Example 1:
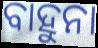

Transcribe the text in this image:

ବାହୁନା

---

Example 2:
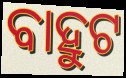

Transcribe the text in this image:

ବାହୁଟ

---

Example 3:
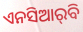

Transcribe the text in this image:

ଏନସିଆର୍‌ବି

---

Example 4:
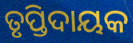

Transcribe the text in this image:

ତୃପ୍ତିଦାୟକ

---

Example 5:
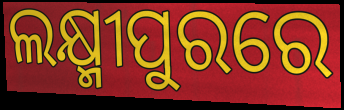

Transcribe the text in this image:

ଲକ୍ଷ୍ମୀପୁରରେ